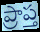
ప్రాప్త